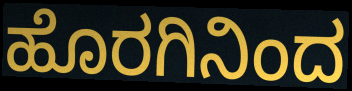
ಹೊರಗಿನಿಂದ